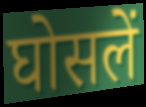
घोसलें